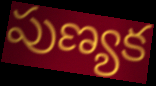
పుణ్యక